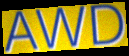
AWD